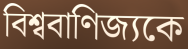
বিশ্ববাণিজ্যকে